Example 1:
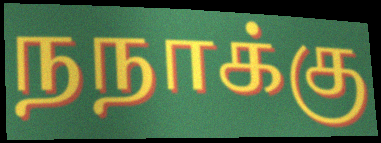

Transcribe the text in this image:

நநாக்கு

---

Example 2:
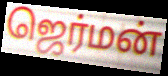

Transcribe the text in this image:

ஜெர்மன்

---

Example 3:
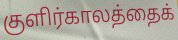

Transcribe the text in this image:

குளிர்காலத்தைக்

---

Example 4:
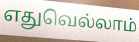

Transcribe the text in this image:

எதுவெல்லாம்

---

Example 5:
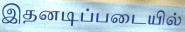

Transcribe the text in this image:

இதனடிப்படையில்